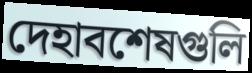
দেহাবশেষগুলি